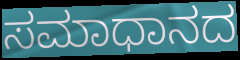
ಸಮಾಧಾನದ